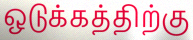
ஒடுக்கத்திற்கு